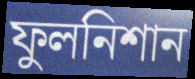
ফুলনিশান